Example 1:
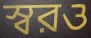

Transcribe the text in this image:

স্বরও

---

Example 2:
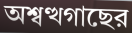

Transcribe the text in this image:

অশ্বত্থগাছের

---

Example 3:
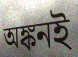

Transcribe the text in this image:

অঙ্কনই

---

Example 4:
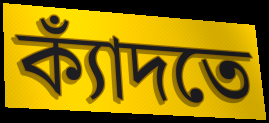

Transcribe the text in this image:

ক্যাঁদতে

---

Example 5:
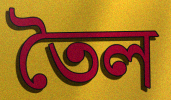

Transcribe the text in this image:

তৈল